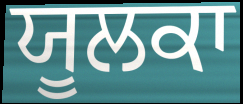
ਯੂਲਕਾ